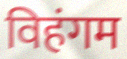
विहंगम